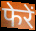
फेरें